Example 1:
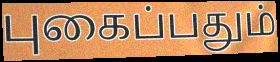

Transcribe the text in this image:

புகைப்பதும்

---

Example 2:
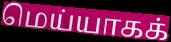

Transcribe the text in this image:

மெய்யாகக்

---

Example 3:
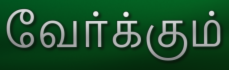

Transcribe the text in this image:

வேர்க்கும்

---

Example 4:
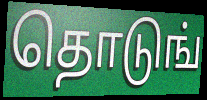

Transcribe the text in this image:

தொடுங்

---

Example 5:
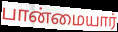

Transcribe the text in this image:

பான்மையார்